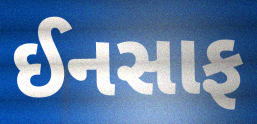
ઈનસાફ